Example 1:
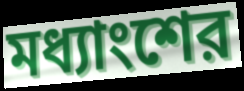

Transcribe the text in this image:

মধ্যাংশের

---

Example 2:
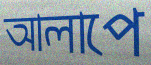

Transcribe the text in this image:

আলাপে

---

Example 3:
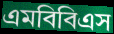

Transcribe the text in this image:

এমবিবিএস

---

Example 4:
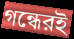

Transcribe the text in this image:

গন্ধেরই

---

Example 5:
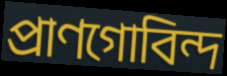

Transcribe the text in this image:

প্রাণগোবিন্দ